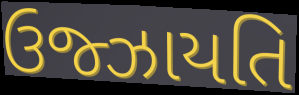
ઉજ્ઝાયતિ